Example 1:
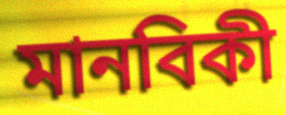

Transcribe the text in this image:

মানবিকী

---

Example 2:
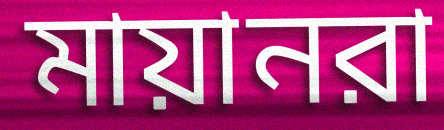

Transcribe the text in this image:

মায়ানরা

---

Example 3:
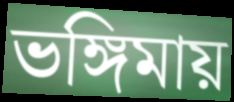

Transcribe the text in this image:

ভঙ্গিমায়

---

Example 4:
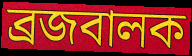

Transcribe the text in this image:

ব্রজবালক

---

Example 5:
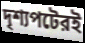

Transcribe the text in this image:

দৃশ্যপটেরই